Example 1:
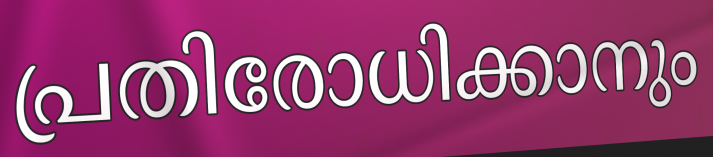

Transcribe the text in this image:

പ്രതിരോധിക്കാനും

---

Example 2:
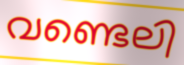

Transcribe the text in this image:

വണ്ടെലി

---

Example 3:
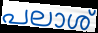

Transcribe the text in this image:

പലാശ്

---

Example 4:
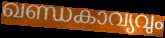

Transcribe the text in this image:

ഖണ്ഡകാവ്യവും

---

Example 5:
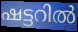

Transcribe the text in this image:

ഷട്ടറിൽ